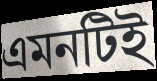
এমনটিই